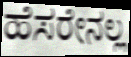
ಹೆಸರೇನಲ್ಲ